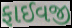
ફાઈવજી